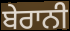
ਬੇਰਾਨੀ